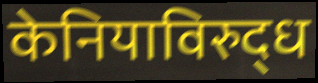
केनियाविरुद्ध